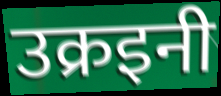
उक्रइनी